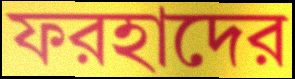
ফরহাদের